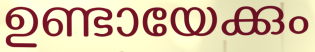
ഉണ്ടായേക്കും